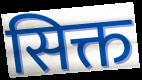
सिक्त